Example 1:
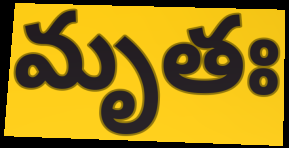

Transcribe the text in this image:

మృతః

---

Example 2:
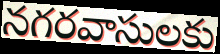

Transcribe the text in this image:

నగరవాసులకు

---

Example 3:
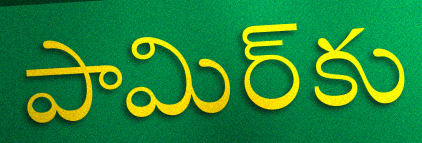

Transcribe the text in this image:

పామిర్‌కు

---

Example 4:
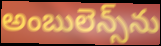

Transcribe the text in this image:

అంబులెన్స్‌ను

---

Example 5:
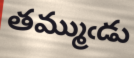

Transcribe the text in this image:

తమ్ముఁడు